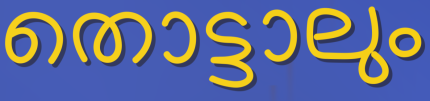
തൊട്ടാലും